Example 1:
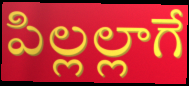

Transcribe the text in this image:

పిల్లల్లాగే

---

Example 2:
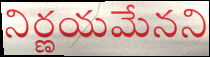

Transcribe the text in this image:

నిర్ణయమేనని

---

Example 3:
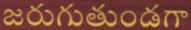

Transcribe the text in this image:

జరుగుతుండగా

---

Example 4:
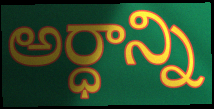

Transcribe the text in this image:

అర్ధాన్ని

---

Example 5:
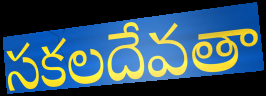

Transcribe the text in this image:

సకలదేవతా